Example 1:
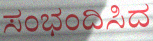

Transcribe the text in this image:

ಸಂಭಂದಿಸಿದ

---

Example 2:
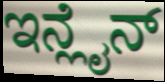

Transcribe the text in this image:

ಇನ್ಲೈನ್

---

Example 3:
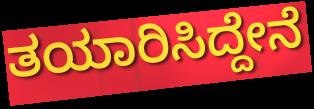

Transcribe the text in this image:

ತಯಾರಿಸಿದ್ದೇನೆ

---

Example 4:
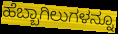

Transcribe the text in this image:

ಹೆಬ್ಬಾಗಿಲುಗಳನ್ನೂ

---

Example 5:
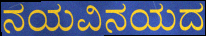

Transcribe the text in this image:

ನಯವಿನಯದ